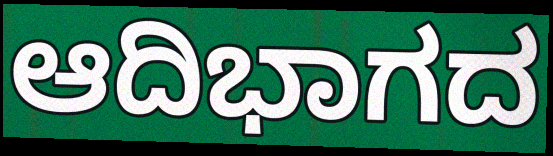
ಆದಿಭಾಗದ